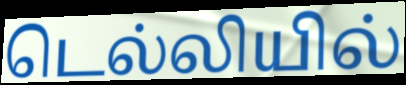
டெல்லியில்